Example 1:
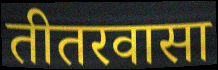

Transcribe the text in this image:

तीतरवासा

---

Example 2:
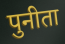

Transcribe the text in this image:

पुनीता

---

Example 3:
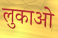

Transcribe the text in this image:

लुकाओ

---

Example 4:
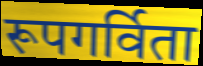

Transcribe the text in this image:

रूपगर्विता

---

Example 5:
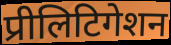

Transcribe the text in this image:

प्रीलिटिगेशन